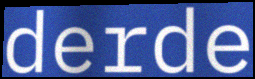
derde